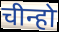
चीन्हो